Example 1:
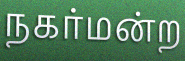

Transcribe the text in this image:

நகர்மன்ற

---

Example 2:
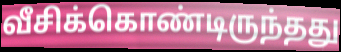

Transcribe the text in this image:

வீசிக்கொண்டிருந்தது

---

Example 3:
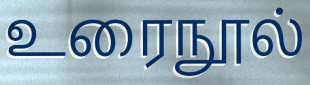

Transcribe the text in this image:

உரைநூல்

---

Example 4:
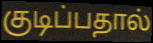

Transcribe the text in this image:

குடிப்பதால்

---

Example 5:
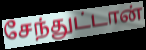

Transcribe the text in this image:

சேந்துட்டான்